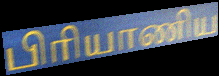
பிரியாணிய